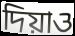
দিয়াও